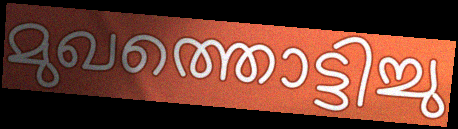
മുഖത്തൊട്ടിച്ചു